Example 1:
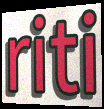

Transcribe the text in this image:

riti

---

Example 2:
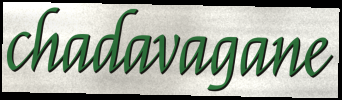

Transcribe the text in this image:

chadavagane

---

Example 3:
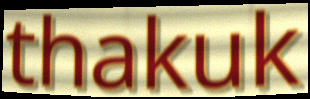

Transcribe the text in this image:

thakuk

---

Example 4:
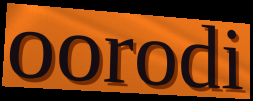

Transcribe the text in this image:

oorodi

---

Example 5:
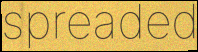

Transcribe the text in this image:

spreaded